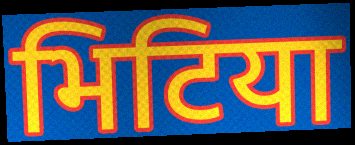
भिटिया